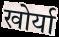
खोर्या